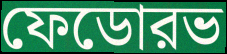
ফেডোরভ